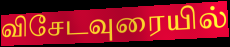
விசேடவுரையில்